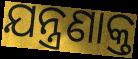
ଯନ୍ତ୍ରଣାକ୍ତ